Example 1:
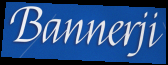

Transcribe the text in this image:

Bannerji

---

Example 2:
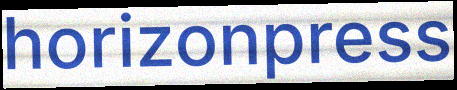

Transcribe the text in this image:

horizonpress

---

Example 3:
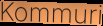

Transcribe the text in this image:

Kommuri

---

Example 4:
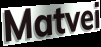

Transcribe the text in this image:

Matvei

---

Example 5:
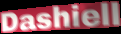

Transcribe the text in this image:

Dashiell